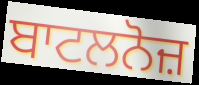
ਬਾਟਲਨੋਜ਼